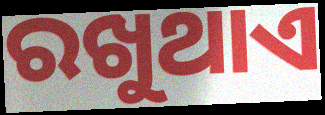
ରଖୁଥାଏ